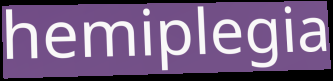
hemiplegia